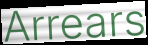
Arrears